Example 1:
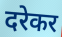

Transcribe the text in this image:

दरेकर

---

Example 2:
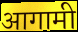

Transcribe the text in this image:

आगामी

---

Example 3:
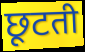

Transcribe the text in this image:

छूटती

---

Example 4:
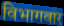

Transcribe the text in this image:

विभागवार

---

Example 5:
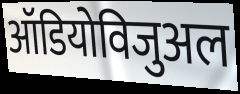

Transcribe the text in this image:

ऑडियोविजुअल